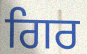
ਗਿਰ